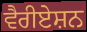
ਵੈਰੀਏਸ਼ਨ